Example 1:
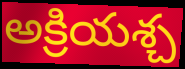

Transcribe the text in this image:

అక్రియశ్చ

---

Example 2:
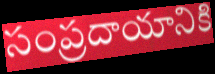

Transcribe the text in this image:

సంప్రదాయానికి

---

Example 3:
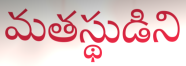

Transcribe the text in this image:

మతస్థుడిని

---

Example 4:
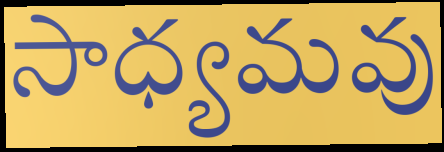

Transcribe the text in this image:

సాధ్యమవు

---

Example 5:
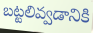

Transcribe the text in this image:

బట్టలివ్వడానికి